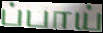
ப்பாய்